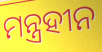
ମନ୍ତ୍ରହୀନ